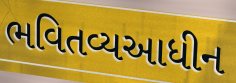
ભવિતવ્યઆધીન